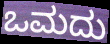
ಒಮದು